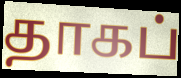
தாகப்